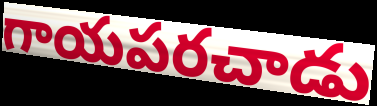
గాయపరచాడు